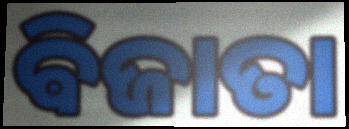
ଵିଜାତା